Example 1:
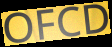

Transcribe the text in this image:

OFCD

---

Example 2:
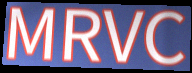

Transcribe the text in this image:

MRVC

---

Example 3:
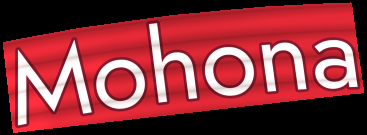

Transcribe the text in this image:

Mohona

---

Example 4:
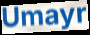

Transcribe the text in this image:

Umayr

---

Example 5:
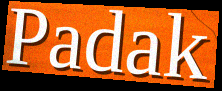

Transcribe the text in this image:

Padak